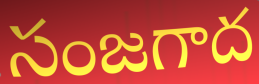
సంజగాద